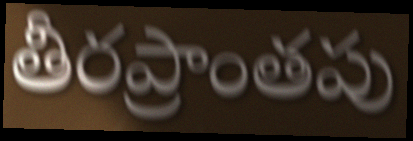
తీరప్రాంతపు